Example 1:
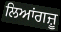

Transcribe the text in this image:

ਲਿਆਂਗਜ਼ੂ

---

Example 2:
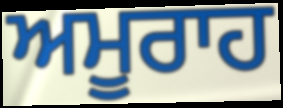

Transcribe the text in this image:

ਅਮੂਰਾਹ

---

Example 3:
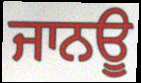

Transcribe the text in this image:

ਜਾਨਊ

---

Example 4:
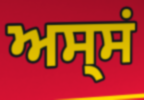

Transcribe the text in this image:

ਅਸ੍ਸਂ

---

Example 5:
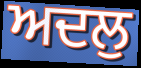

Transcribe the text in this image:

ਅਦਲੁ